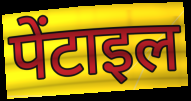
पेंटाइल